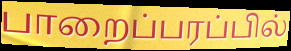
பாறைப்பரப்பில்